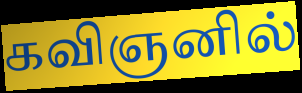
கவிஞனில்